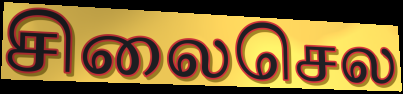
சிலைசெல